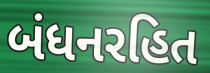
બંધનરહિત